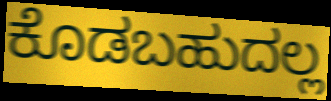
ಕೊಡಬಹುದಲ್ಲ